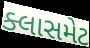
ક્લાસમેટ